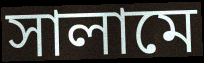
সালামে